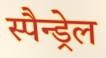
स्पैन्ड्रेल